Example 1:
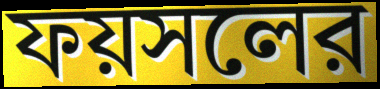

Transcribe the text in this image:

ফয়সলের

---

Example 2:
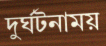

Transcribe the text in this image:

দুর্ঘটনাময়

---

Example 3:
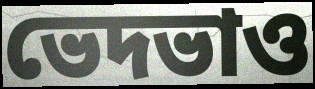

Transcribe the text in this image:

ভেদভাও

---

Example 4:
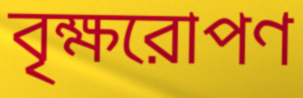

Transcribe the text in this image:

বৃক্ষরোপণ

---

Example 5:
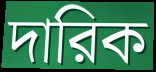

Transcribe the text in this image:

দারিক